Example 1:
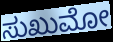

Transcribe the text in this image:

ಸುಖುಮೋ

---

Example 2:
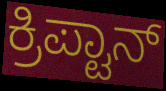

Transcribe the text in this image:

ಕ್ರಿಪ್ಟಾನ್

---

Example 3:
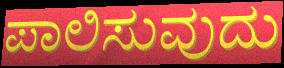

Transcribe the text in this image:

ಪಾಲಿಸುವುದು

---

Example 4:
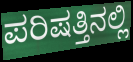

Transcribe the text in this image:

ಪರಿಷತ್ತಿನಲ್ಲಿ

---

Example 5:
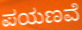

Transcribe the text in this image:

ಪಯಣವೆ